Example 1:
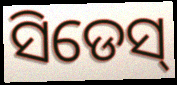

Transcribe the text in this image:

ସିଡେସ୍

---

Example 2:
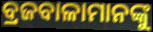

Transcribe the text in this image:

ବ୍ରଜବାଳାମାନଙ୍କୁ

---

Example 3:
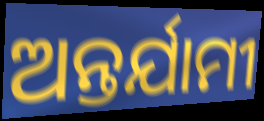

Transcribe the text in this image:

ଅନ୍ତର୍ଯାମୀ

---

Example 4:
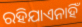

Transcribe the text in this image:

ରହିଯାଏନାହିଁ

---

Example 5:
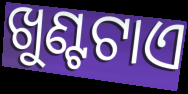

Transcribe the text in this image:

ଖୁଣ୍ଟଟାଏ